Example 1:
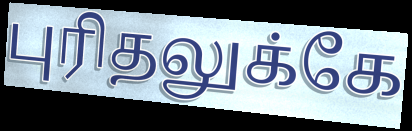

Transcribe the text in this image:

புரிதலுக்கே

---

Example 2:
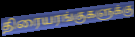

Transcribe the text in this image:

திரையரங்குகளுக்கு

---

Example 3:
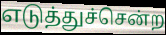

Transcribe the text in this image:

எடுத்துச்சென்ற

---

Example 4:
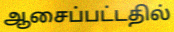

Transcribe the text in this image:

ஆசைப்பட்டதில்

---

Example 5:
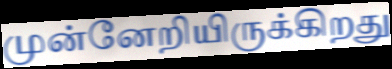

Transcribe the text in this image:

முன்னேறியிருக்கிறது